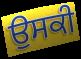
ਉਸਕੀ